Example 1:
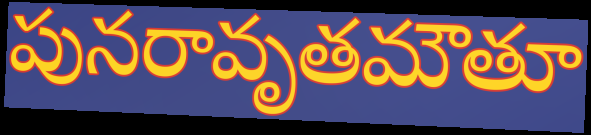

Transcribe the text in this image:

పునరావృతమౌతూ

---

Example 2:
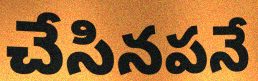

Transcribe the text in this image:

చేసినపనే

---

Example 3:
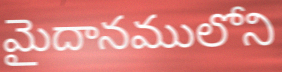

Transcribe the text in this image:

మైదానములోని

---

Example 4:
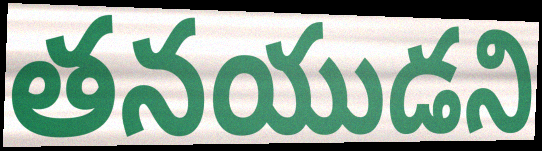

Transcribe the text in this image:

తనయుడని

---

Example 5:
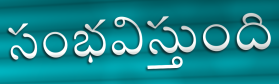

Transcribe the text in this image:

సంభవిస్తుంది